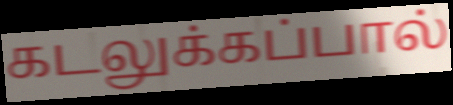
கடலுக்கப்பால்